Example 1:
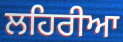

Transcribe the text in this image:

ਲਹਿਰੀਆ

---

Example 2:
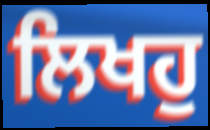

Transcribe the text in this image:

ਲਿਖਹੁ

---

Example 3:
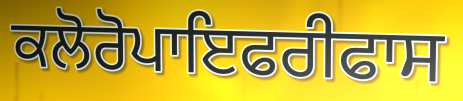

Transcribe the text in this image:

ਕਲੋਰੋਪਾਇਫਰੀਫਾਸ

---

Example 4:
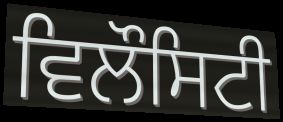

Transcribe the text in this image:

ਵਿਲੌਸਿਟੀ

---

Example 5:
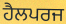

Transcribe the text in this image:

ਹੈਲਪਰਜ